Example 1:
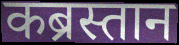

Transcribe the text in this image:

कब्रस्तान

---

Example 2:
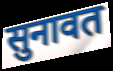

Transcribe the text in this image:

सुनावत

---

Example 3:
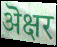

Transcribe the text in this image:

ऄक्षर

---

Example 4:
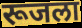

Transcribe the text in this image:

रूजला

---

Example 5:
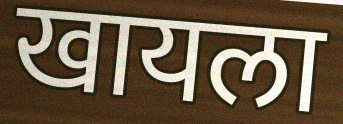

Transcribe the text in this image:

खायला